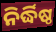
ନିର୍ଦ୍ଧିଷ୍ଠ